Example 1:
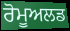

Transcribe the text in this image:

ਰੋਮੂਅਲਡ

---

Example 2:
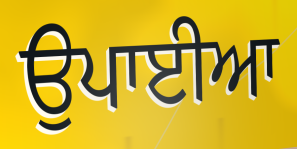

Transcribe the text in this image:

ਉਪਾਈਆ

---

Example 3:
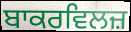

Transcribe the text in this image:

ਬਾਕਰਵਿਲਜ਼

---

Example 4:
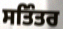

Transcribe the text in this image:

ਸਤਿੰਤਰ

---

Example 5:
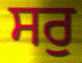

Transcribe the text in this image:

ਸਰੁ